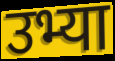
उभ्या